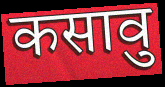
कसावु